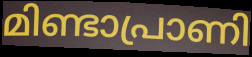
മിണ്ടാപ്രാണി